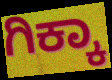
ಗಿಕ್ಕಾ